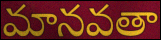
మానవతా